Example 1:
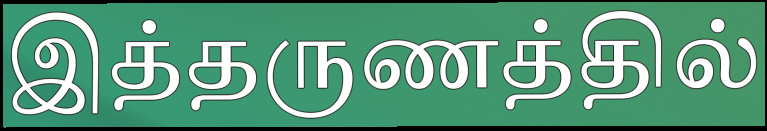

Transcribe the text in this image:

இத்தருணத்தில்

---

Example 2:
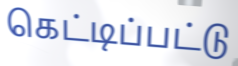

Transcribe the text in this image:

கெட்டிப்பட்டு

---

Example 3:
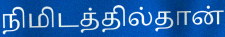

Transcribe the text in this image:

நிமிடத்தில்தான்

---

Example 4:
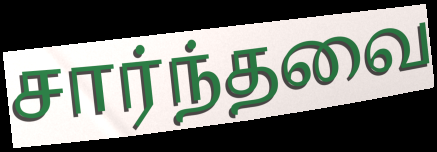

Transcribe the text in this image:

சார்ந்தவை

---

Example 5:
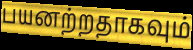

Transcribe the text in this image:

பயனற்றதாகவும்